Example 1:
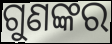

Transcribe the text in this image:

ଗୁଣଙ୍କର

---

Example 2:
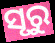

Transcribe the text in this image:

ସୃରୁ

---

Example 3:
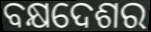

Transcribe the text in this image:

ବକ୍ଷଦେଶର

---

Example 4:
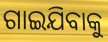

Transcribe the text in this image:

ଗାଇଯିବାକୁ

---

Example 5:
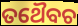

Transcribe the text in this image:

ତଥୈବଚ